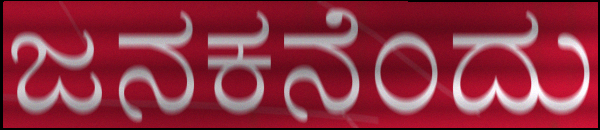
ಜನಕನೆಂದು